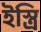
ইস্ত্রি